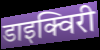
डाइक्विरी